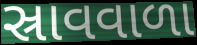
સ્રાવવાળા